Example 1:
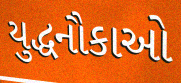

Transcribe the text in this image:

યુદ્ધનૌકાઓ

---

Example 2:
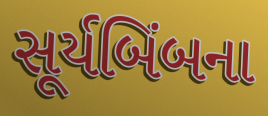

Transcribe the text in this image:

સૂર્યબિંબના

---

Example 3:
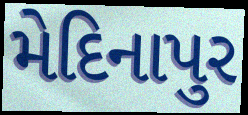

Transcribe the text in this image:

મેદિનાપુર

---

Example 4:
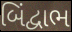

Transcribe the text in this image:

બિંદ્વાભ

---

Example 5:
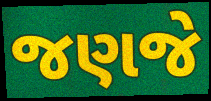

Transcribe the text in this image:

જણજે